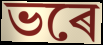
ভৰে